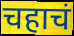
चहाचं